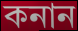
কনান